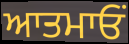
ਆਤਮਾਓਂ